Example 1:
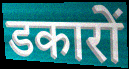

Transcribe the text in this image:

डकारों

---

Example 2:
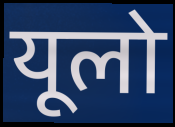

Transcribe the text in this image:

यूलो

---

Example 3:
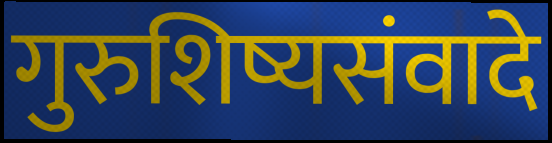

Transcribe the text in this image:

गुरुशिष्यसंवादे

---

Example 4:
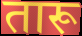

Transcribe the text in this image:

तारू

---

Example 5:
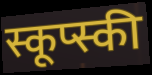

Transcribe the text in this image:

स्कूप्स्की